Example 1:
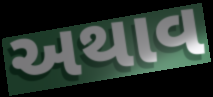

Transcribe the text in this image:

અથાવ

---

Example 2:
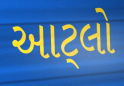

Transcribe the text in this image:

આટ્લો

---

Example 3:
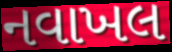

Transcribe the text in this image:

નવાખલ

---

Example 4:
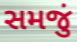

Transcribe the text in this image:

સમજું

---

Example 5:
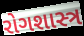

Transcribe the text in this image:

રોગશાસ્ત્ર